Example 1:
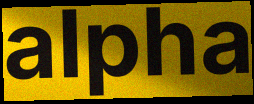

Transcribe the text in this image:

alpha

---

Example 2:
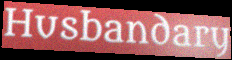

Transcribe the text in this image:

Husbandary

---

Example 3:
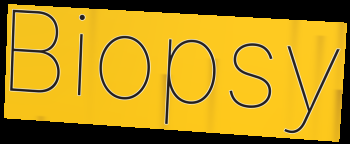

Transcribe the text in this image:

Biopsy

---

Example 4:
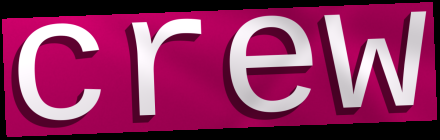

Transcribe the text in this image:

crew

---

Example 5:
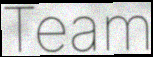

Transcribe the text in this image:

Team